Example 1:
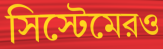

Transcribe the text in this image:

সিস্টেমেরও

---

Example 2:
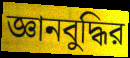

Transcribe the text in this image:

জ্ঞানবুদ্ধির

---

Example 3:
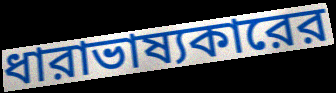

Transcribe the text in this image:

ধারাভাষ্যকারের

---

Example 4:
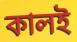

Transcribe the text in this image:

কালই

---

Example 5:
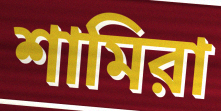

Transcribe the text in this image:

শামিরা